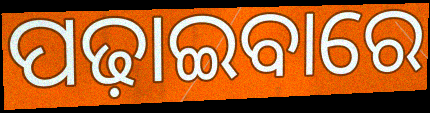
ପଢ଼ାଇବାରେ